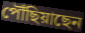
পৌঁছিয়াছেন